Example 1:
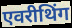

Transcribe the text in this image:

एवरीथिंग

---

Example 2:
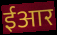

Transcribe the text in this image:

ईआर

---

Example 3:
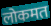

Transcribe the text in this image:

लोकमत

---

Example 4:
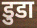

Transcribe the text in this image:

डुडा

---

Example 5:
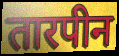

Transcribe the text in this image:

तारपीन